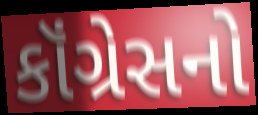
કૉંગ્રેસનો